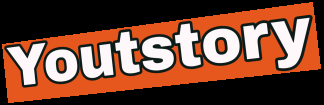
Youtstory